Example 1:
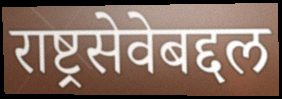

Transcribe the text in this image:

राष्ट्रसेवेबद्दल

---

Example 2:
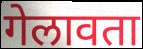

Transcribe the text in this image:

गेलावता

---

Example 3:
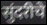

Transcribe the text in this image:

सुंदरीचे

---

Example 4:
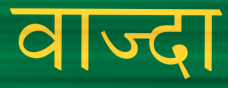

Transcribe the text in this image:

वाज्दा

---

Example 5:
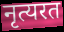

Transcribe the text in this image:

नृत्यरत